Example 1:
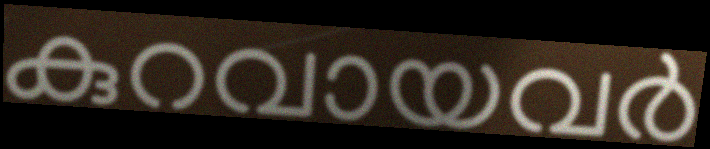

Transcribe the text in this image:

കുറവായവർ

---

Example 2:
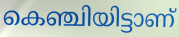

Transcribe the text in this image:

കെഞ്ചിയിട്ടാണ്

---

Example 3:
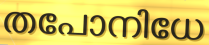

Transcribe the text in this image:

തപോനിധേ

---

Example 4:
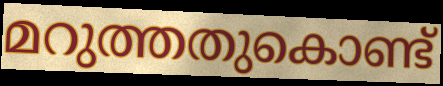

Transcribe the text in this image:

മറുത്തതുകൊണ്ട്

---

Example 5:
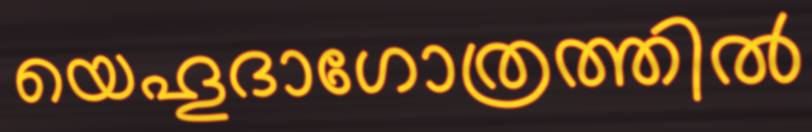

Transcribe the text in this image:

യെഹൂദാഗോത്രത്തിൽ